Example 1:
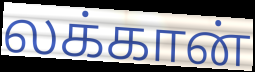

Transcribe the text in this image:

லக்கான்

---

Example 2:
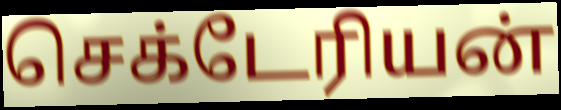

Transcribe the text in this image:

செக்டேரியன்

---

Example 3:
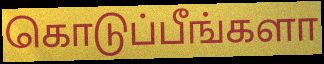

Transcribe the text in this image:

கொடுப்பீங்களா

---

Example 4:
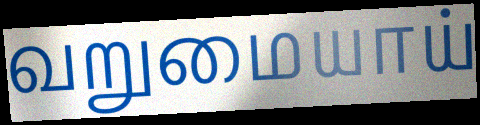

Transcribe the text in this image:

வறுமையாய்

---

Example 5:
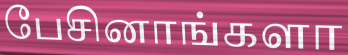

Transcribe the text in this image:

பேசினாங்களா